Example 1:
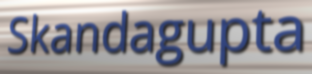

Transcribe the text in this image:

Skandagupta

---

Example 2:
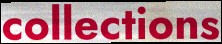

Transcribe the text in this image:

collections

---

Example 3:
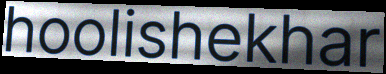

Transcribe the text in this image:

hoolishekhar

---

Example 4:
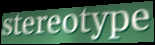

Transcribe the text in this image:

stereotype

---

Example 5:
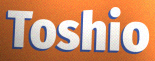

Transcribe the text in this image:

Toshio